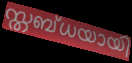
സ്തബ്ധയായി